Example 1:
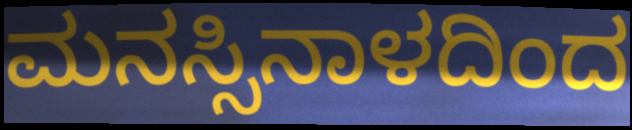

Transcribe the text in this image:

ಮನಸ್ಸಿನಾಳದಿಂದ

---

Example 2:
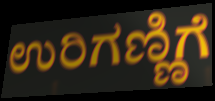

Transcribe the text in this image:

ಉರಿಗಣ್ಣಿಗೆ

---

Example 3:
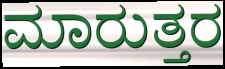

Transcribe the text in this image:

ಮಾರುತ್ತರ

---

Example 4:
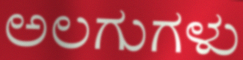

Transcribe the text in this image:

ಅಲಗುಗಳು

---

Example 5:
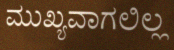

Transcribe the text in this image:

ಮುಖ್ಯವಾಗಲಿಲ್ಲ